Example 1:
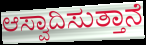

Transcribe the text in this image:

ಆಸ್ವಾದಿಸುತ್ತಾನೆ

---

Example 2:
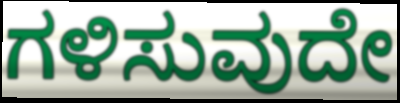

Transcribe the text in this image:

ಗಳಿಸುವುದೇ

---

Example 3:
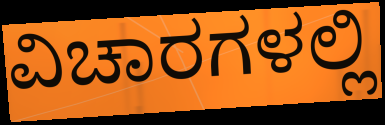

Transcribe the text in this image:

ವಿಚಾರಗಳಲ್ಲಿ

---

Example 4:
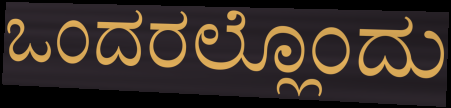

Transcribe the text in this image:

ಒಂದರಲ್ಲೊಂದು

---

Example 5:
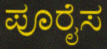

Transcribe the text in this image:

ಪೂರೈಸ